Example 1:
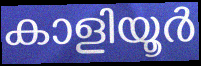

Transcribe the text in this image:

കാളിയൂർ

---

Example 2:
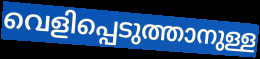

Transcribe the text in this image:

വെളിപ്പെടുത്താനുള്ള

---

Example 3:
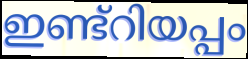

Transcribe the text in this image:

ഇണ്ട്റിയപ്പം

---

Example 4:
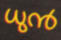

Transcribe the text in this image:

ധുൻ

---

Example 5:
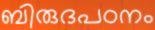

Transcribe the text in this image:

ബിരുദപഠനം